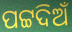
ପଟ୍ଟଦିଅଁ